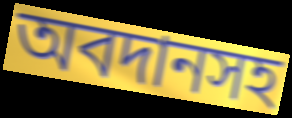
অবদানসহ